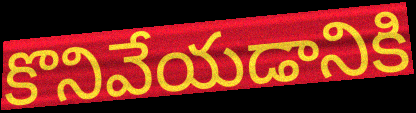
కొనివేయడానికి